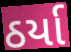
ઠર્યા